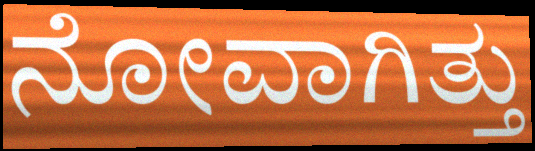
ನೋವಾಗಿತ್ತು